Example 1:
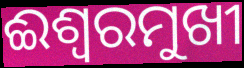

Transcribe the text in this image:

ଈଶ୍ୱରମୁଖୀ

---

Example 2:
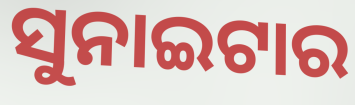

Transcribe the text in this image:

ସୁନାଇଟାର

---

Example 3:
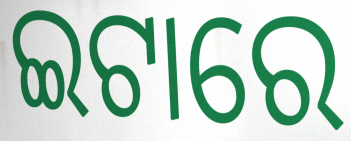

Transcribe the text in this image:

ଇଟାରେ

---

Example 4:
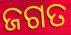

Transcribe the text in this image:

ଜଗତ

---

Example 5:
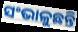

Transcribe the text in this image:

ସଂଭାଳୁଛନ୍ତି